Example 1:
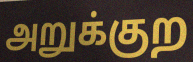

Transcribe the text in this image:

அறுக்குற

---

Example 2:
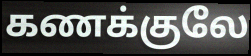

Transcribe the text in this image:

கணக்குலே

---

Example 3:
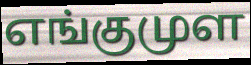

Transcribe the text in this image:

எங்குமுள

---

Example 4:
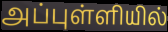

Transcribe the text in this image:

அப்புள்ளியில்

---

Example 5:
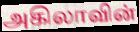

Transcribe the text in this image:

அகிலாவின்